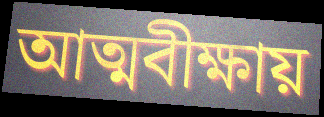
আত্মবীক্ষায়